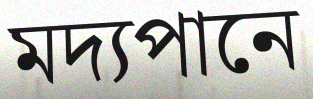
মদ্যপানে